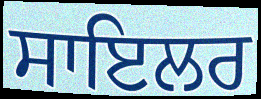
ਸਾਇਲਰ